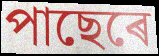
পাছেৰে